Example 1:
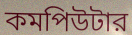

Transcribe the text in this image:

কমপিউটার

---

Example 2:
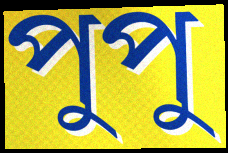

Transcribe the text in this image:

পুপু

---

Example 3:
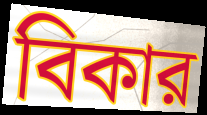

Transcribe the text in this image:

বিকার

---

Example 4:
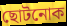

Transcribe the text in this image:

ছোটনোক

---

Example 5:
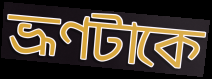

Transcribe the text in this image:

ভ্রূণটাকে